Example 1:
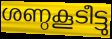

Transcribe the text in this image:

ശണ്ഠകൂടീട്ടു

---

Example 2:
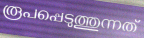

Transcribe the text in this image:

രൂപപ്പെടുത്തുന്നത്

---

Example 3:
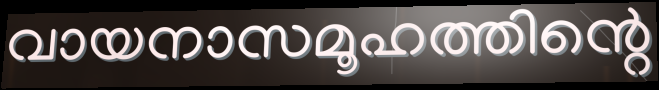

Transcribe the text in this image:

വായനാസമൂഹത്തിന്റെ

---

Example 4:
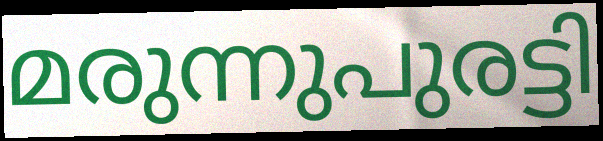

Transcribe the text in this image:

മരുന്നുപുരട്ടി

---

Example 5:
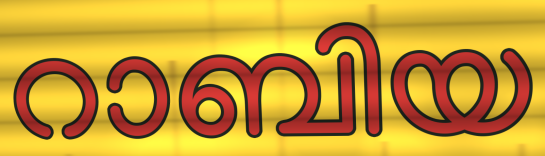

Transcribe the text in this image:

റാബിയ